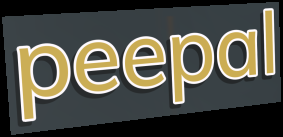
peepal